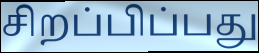
சிறப்பிப்பது